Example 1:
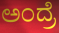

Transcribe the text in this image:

ಅಂದ್ರೆ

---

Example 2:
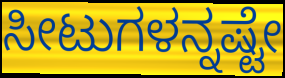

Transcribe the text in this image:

ಸೀಟುಗಳನ್ನಷ್ಟೇ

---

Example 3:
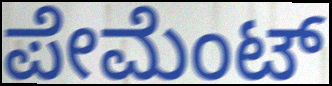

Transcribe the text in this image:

ಪೇಮೆಂಟ್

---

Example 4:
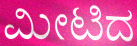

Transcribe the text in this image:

ಮೀಟಿದ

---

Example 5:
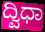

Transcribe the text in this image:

ದ್ವಿಧಾ